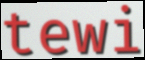
tewi